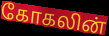
கோகலின்